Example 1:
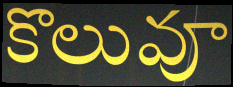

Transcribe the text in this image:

కొలువూ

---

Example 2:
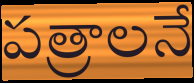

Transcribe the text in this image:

పత్రాలనే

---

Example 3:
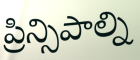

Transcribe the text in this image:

ప్రిన్సిపాల్ని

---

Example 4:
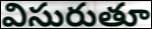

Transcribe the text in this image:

విసురుతూ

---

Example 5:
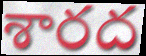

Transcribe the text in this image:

శారద